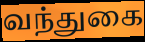
வந்துகை